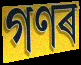
গণৰ